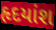
હૃદયાંશ